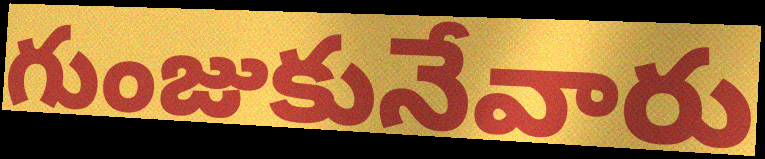
గుంజుకునేవారు